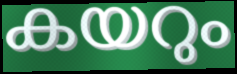
കയറും